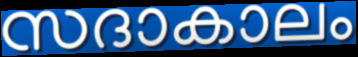
സദാകാലം